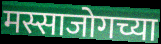
मस्साजोगच्या